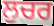
ਲੁਚਰ